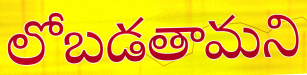
లోబడతామని